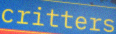
critters